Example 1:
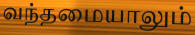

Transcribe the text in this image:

வந்தமையாலும்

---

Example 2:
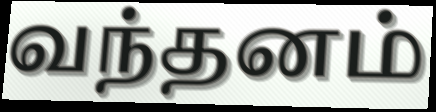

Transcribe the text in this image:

வந்தனம்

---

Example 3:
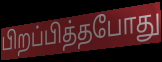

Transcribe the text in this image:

பிறப்பித்தபோது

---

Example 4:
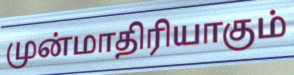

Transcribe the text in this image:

முன்மாதிரியாகும்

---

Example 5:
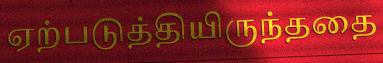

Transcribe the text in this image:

ஏற்படுத்தியிருந்ததை